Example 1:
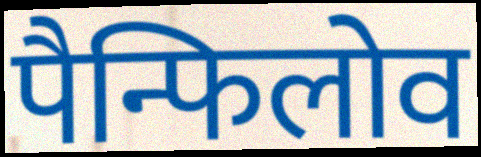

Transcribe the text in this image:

पैन्फिलोव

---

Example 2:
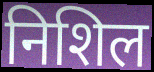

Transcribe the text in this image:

निशिल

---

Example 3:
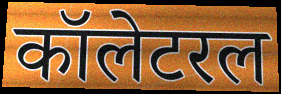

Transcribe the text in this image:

कॉलेटरल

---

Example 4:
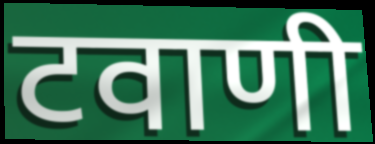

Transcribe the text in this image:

टवाणी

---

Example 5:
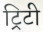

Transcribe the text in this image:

ट्रिटी